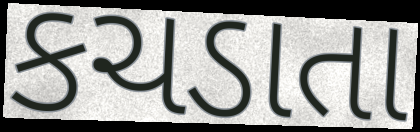
કચડાતા